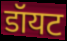
डॉयट